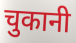
चुकानी